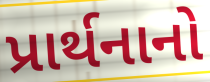
પ્રાર્થનાનો